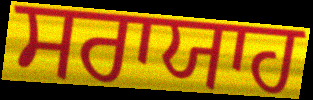
ਸਰਾਯਾਹ